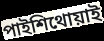
পাইশিথোয়াই